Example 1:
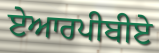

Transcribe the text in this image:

ਏਆਰਪੀਬੀਏ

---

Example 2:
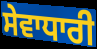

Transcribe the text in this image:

ਸੇਵਾਧਾਰੀ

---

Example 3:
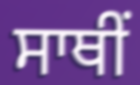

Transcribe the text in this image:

ਸਾਥੀਂ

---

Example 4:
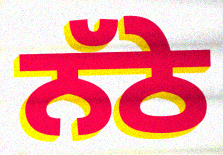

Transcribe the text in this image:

ਨੱਠੇ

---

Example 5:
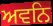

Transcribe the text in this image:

ਅਵਨਿ